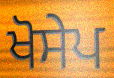
ਖੋਸੇਪ